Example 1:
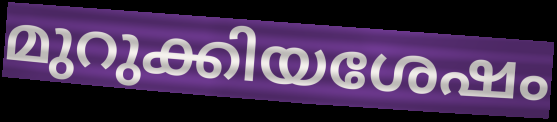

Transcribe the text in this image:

മുറുക്കിയശേഷം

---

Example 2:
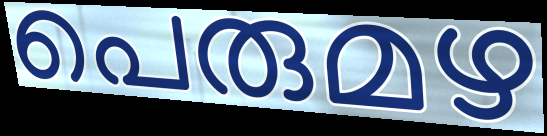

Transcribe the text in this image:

പെരുമഴ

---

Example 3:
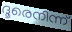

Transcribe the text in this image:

ദൂരെനിന്ന്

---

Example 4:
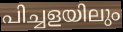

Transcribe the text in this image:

പിച്ചളയിലും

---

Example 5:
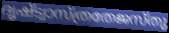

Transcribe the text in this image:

ദൃഷ്ട്വാസ്ത്രതേജസ്തു